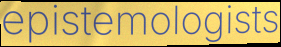
epistemologists